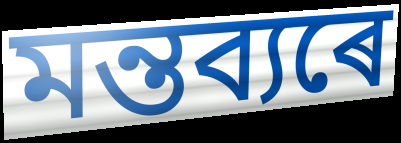
মন্তব্যৰে